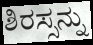
ಶಿರಸ್ಸನ್ನು